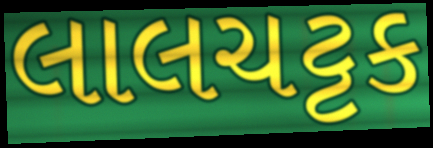
લાલચટ્ટક